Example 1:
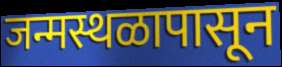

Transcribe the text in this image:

जन्मस्थळापासून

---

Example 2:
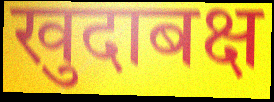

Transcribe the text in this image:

खुदाबक्ष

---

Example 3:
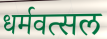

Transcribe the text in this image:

धर्मवत्सल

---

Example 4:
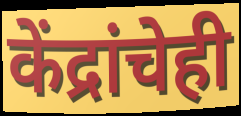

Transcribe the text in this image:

केंद्रांचेही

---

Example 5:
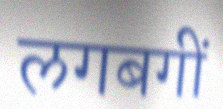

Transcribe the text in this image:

लगबगीं